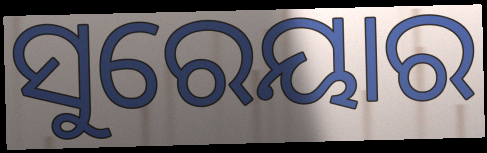
ସୁରେୟାର